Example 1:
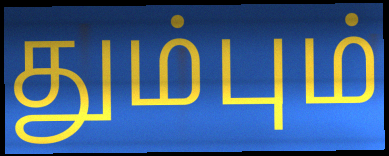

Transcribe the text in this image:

தும்பும்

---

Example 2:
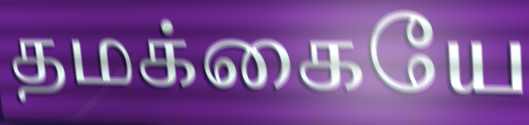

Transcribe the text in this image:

தமக்கையே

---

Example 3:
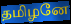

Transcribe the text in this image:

தமிழனே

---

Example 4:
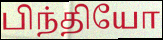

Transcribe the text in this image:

பிந்தியோ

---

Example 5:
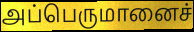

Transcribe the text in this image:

அப்பெருமானைச்